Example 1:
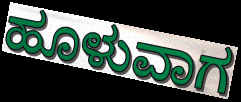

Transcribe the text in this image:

ಹೂಳುವಾಗ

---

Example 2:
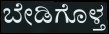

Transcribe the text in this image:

ಬೇಡಿಗೊಳ್ತ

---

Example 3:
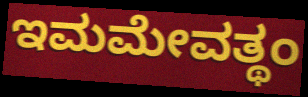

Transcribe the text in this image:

ಇಮಮೇವತ್ಥಂ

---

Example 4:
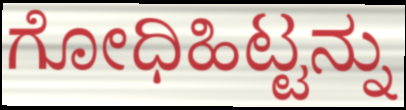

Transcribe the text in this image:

ಗೋಧಿಹಿಟ್ಟನ್ನು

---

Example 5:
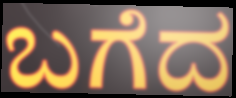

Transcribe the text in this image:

ಬಗೆದ